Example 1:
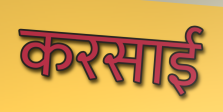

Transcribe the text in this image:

करसाई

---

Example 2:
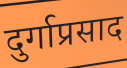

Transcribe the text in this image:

दुर्गाप्रसाद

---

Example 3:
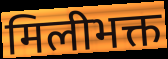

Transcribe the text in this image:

मिलीभक्त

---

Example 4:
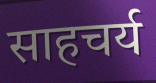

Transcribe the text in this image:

साहचर्य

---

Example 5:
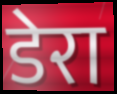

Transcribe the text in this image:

डेरा